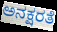
ಅನಕ್ಷರತೆ